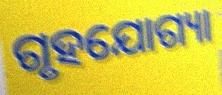
ଗୃହଯୋଗ୍ୟା